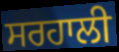
ਸਰਹਾਲੀ